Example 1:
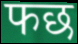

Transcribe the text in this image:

फछ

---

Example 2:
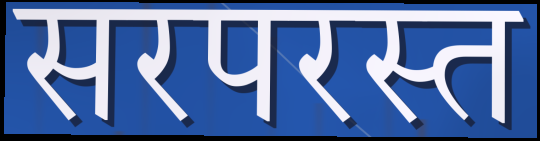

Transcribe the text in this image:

सरपरस्त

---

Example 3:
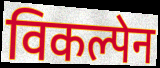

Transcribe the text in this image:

विकल्पेन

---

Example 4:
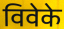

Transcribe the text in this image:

विवेके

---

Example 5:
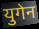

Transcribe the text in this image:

युगेन